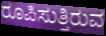
ರೂಪಿಸುತ್ತಿರುವ